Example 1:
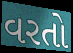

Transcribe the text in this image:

વરતો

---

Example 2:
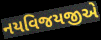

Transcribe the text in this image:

નયવિજયજીએ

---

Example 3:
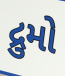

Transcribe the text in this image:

દ્રુમો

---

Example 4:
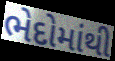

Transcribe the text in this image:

ભેદોમાંથી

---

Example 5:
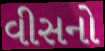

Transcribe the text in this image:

વીસનો